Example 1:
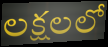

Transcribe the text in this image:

లక్షలలో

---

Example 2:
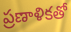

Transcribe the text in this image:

ప్రణాళికతో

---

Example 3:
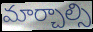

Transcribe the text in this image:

మార్చాల్సి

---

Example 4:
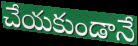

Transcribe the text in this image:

చేయకుండానే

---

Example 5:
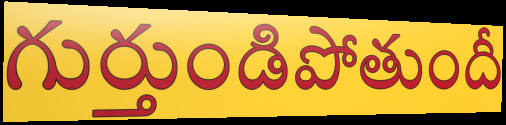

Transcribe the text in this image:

గుర్తుండిపోతుందీ